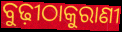
ବୁଢ଼ୀଠାକୁରାଣୀ